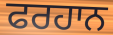
ਫਰਹਾਨ